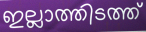
ഇല്ലാത്തിടത്ത്